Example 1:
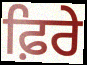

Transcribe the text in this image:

ਫ਼ਿਰੇ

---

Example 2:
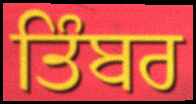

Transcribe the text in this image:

ਤਿੰਬਰ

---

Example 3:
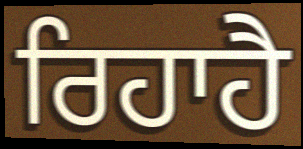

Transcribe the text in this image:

ਰਿਹਾਹੈ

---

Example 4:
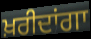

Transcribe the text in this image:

ਖ਼ਰੀਦਾਂਗਾ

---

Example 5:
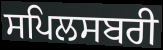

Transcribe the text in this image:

ਸਪਿਲਸਬਰੀ